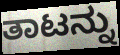
ತಾಟನ್ನು